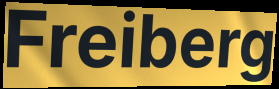
Freiberg